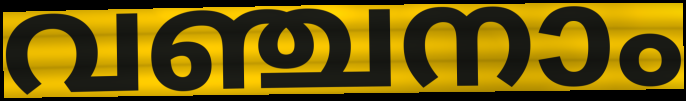
വഞ്ചനാം